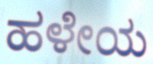
ಹಳೇಯ